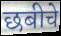
छबीचे